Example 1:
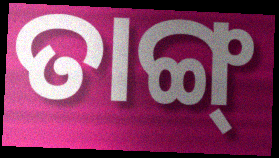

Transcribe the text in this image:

ତାଙ୍ଗ୍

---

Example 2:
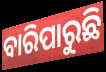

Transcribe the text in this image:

ବାରିପାରୁଛି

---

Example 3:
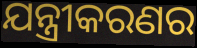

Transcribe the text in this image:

ଯନ୍ତ୍ରୀକରଣର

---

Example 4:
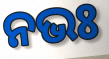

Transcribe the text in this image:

ନଭଃ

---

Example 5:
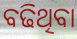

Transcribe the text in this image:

ବଢିଥିବା